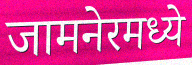
जामनेरमध्ये